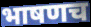
भाषणच